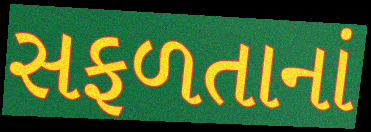
સફળતાનાં